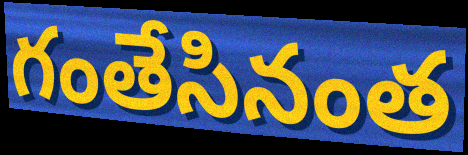
గంతేసినంత